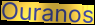
Ouranos